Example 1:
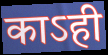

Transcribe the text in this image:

काऽही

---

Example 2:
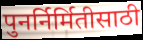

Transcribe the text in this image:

पुनर्निर्मितीसाठी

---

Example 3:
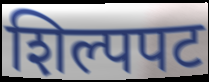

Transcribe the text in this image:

शिल्पपट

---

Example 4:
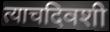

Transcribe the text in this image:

त्याचदिवशी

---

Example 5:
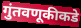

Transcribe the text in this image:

गुंतवणूकीकडे